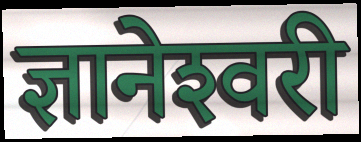
ज्ञानेश्‍वरी